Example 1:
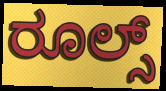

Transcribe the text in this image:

ರೂಲ್ಸ್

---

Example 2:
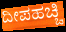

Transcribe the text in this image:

ದೀಪಹಚ್ಚಿ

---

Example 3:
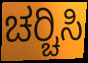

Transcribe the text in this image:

ಚರ‍್ಚಿಸಿ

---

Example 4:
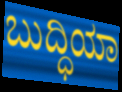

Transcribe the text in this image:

ಬುದ್ಧಿಯಾ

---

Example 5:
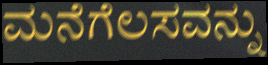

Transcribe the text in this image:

ಮನೆಗೆಲಸವನ್ನು